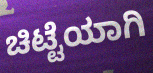
ಚಿಟ್ಟೆಯಾಗಿ